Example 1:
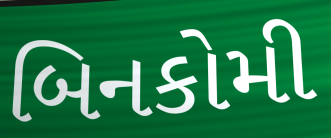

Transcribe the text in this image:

બિનકોમી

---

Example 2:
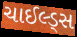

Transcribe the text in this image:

ચાઈલ્ડ્સ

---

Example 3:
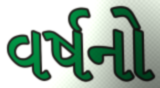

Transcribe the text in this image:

વર્ષનો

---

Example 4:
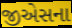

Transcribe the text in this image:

જીએસના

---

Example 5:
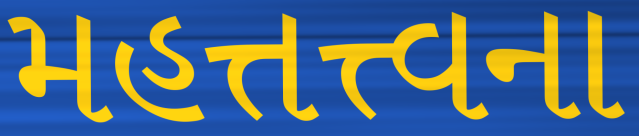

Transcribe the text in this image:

મહત્તત્ત્વના